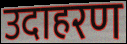
उदाहरण